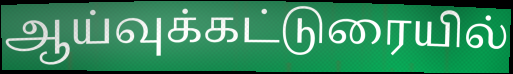
ஆய்வுக்கட்டுரையில்